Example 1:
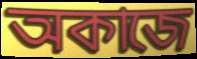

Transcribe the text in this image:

অকাজে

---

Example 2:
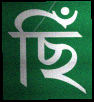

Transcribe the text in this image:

ছিঁ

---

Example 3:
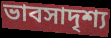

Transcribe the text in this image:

ভাবসাদৃশ্য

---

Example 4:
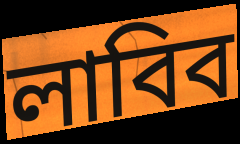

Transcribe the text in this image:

লাবিব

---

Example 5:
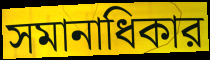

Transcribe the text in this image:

সমানাধিকার